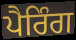
ਪੈਰਿੰਗ